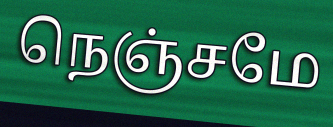
நெஞ்சமே